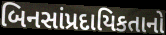
બિનસાંપ્રદાયિકતાનો